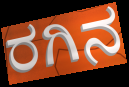
ರಗಿನ